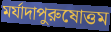
মর্যাদাপুরুষোত্তম